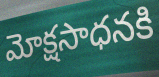
మోక్షసాధనకి